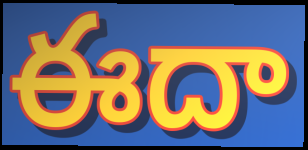
ఈదా